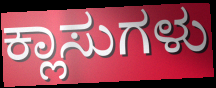
ಕ್ಲಾಸುಗಳು